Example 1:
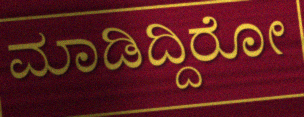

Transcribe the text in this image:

ಮಾಡಿದ್ದಿರೋ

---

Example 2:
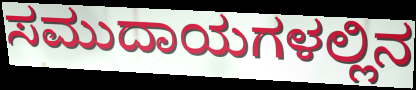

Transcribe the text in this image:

ಸಮುದಾಯಗಳಲ್ಲಿನ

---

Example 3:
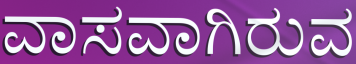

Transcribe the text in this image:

ವಾಸವಾಗಿರುವ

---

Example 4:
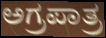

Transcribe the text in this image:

ಅಗ್ರಪಾತ್ರ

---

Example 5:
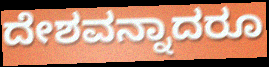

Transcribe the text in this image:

ದೇಶವನ್ನಾದರೂ